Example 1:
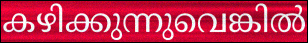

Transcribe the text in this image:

കഴിക്കുന്നുവെങ്കിൽ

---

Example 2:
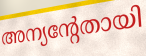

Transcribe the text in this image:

അന്യന്റേതായി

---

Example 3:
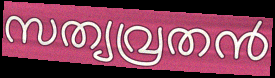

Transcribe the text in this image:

സത്യവ്രതൻ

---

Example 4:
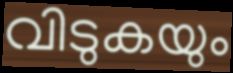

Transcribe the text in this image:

വിടുകയും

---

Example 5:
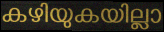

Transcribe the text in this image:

കഴിയുകയില്ലാ